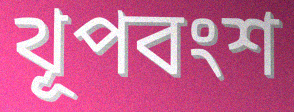
থূপবংশ